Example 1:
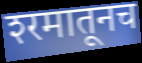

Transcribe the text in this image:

श्रमातूनच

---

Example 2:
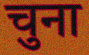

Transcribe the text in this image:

चुना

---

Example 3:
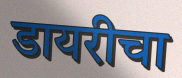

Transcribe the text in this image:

डायरीचा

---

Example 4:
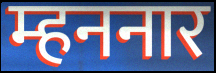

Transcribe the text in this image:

म्हननार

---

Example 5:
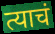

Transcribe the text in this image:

त्याचं